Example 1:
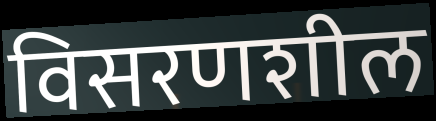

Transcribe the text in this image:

विसरणशील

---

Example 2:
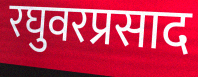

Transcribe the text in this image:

रघुवरप्रसाद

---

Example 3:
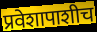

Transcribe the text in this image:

प्रवेशापाशीच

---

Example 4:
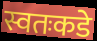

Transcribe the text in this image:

स्वतःकडे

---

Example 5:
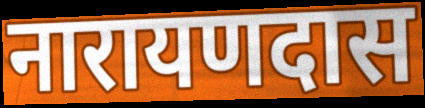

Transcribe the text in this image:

नारायणदास